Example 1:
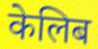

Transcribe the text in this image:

केलिब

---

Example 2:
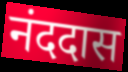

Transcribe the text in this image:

नंददास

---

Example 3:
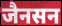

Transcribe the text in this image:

जैनसन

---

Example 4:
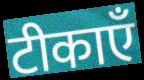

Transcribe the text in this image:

टीकाएँ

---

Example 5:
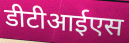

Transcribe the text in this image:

डीटीआईएस